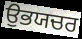
ਉਭਯਚਰ